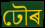
ঢৌৰ